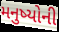
મનુષ્યોની